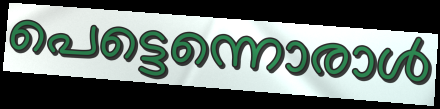
പെട്ടെന്നൊരാൾ